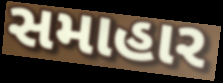
સમાહાર